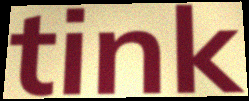
tink